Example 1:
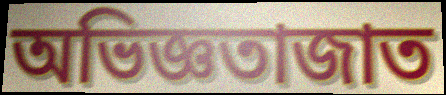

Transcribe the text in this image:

অভিজ্ঞতাজাত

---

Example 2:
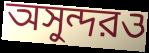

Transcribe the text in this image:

অসুন্দরও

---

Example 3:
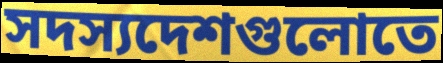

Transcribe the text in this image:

সদস্যদেশগুলোতে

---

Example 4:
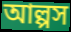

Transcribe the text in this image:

আল্পস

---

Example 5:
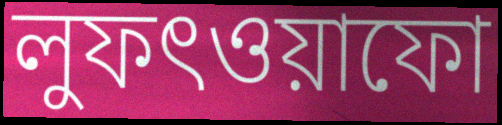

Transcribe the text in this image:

লুফৎওয়াফো